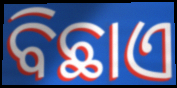
ବିଛାଏ